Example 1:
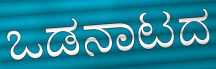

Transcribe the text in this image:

ಒಡನಾಟದ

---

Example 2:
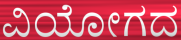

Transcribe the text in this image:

ವಿಯೋಗದ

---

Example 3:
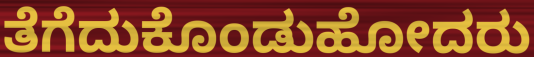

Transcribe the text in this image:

ತೆಗೆದುಕೊಂಡುಹೋದರು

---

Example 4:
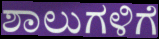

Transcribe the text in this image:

ಶಾಲುಗಳಿಗೆ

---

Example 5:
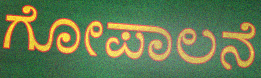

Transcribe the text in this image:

ಗೋಪಾಲನೆ